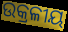
ଉକ୍ରଳୀୟ